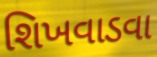
શિખવાડવા